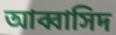
আব্বাসিদ